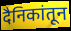
दैनिकांतून